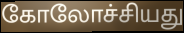
கோலோச்சியது